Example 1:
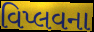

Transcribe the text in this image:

વિપ્લવના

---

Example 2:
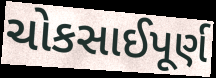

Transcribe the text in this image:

ચોકસાઈપૂર્ણ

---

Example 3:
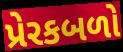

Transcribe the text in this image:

પ્રેરકબળો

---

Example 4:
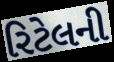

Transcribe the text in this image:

રિટેલની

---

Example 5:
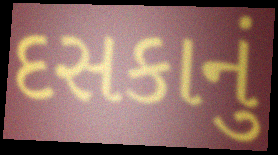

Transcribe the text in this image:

દસકાનું